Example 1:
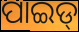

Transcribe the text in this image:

ପାଇଡ୍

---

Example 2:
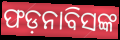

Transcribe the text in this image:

ଫଡ଼ନାବିସଙ୍କ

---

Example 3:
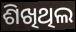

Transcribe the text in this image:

ଶିଖିଥିଲ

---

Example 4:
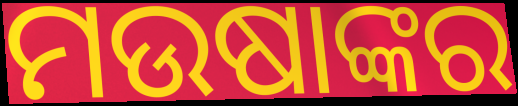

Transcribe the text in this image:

ମଉଷାଙ୍କର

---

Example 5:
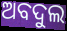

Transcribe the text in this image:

ଅବଦୁଲ